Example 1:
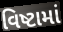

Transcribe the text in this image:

વિષ્ટામાં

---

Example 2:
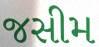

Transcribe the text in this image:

જસીમ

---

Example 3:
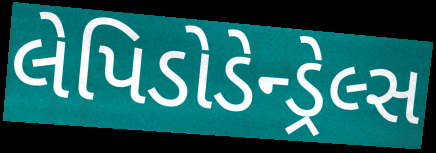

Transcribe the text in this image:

લેપિડોડેન્ડ્રેલ્સ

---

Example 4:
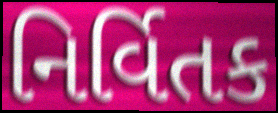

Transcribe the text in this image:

નિર્વિતક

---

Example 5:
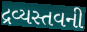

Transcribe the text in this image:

દ્રવ્યસ્તવની